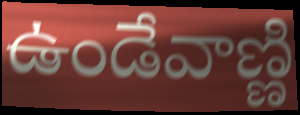
ఉండేవాణ్ణి